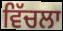
ਵਿੱਚਲਾ